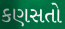
કણસતો